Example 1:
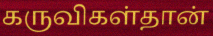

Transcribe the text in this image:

கருவிகள்தான்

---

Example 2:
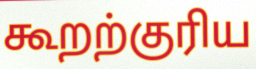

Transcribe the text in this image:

கூறற்குரிய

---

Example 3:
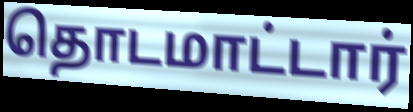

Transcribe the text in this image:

தொடமாட்டார்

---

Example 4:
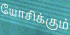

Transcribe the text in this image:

யோசிக்கும்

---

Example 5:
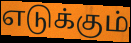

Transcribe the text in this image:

எடுக்கும்